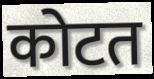
कोटत